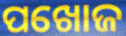
ପଖୋଜ